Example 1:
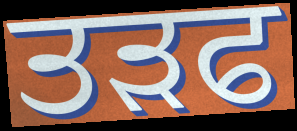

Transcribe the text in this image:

ਤੜਫ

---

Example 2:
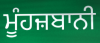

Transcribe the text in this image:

ਮੂੰਹਜ਼ਬਾਨੀ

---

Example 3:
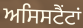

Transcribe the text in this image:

ਅਸਿਸਟੈਂਟਾਂ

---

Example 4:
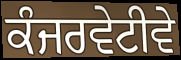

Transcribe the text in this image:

ਕੰਜਰਵੇਟੀਵੇ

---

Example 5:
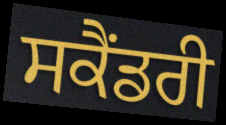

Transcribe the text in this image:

ਸਕੈਂਡਰੀ